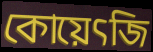
কোয়েৎজি